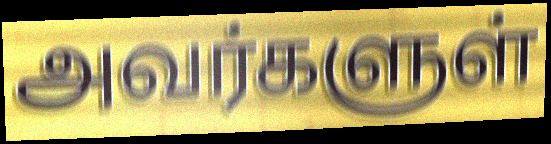
அவர்களுள்